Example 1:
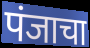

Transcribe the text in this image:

पंजाचा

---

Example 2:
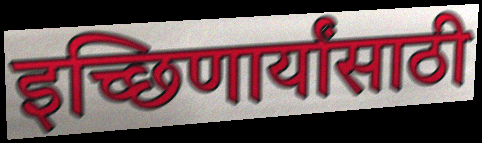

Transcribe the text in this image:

इच्छिणार्यांसाठी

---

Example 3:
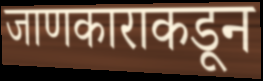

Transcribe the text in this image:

जाणकाराकडून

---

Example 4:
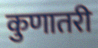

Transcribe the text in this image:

कुणातरी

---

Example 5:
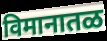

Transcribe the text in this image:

विमानातळ